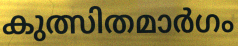
കുത്സിതമാർഗം